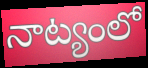
నాట్యంలో